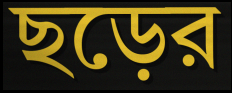
ছড়ের